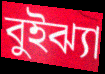
বুইঝ্যা